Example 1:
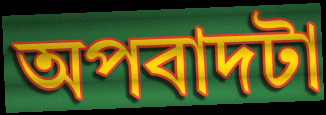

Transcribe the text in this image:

অপবাদটা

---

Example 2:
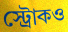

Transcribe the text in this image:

স্ট্রোকও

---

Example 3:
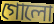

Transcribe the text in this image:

গোলো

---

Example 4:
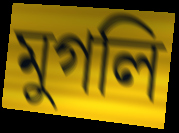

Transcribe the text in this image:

মুগলি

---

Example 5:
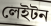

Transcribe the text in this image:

লেইটন